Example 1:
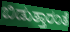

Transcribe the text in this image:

ಬಿಡುತ್ತಾರಂತೆ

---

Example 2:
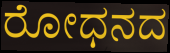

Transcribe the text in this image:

ರೋಧನದ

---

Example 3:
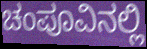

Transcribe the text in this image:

ಚಂಪೂವಿನಲ್ಲಿ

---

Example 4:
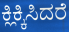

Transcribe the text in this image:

ಕ್ಲಿಕ್ಕಿಸಿದರೆ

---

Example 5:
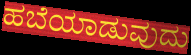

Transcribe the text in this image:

ಹಬೆಯಾಡುವುದು